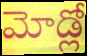
మోడ్లో